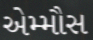
એમ્મૌસ